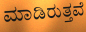
ಮಾಡಿರುತ್ತವೆ